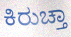
ಕಿರುಚ್ತಾ